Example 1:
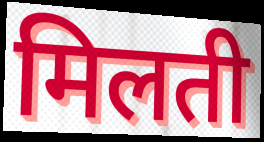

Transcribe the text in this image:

मिलती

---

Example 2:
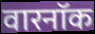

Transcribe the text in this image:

वारनॉक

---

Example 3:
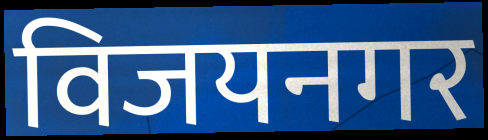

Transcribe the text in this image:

विजयनगर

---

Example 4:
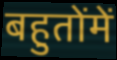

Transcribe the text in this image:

बहुतोंमें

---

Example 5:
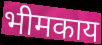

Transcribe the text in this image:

भीमकाय